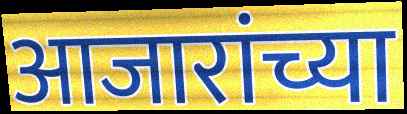
आजारांच्या